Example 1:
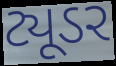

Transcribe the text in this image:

ટ્યૂડર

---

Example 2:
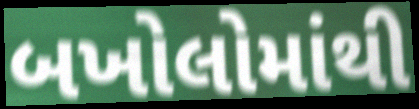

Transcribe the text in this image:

બખોલોમાંથી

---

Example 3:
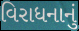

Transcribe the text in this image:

વિરાધનાનું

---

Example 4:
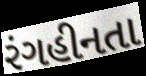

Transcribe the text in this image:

રંગહીનતા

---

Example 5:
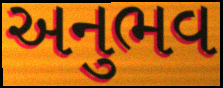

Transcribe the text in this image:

અનુભવ